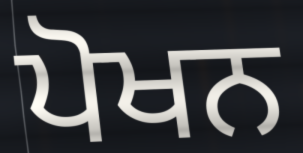
ਪੋਖਨ